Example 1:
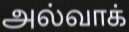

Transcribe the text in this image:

அல்வாக்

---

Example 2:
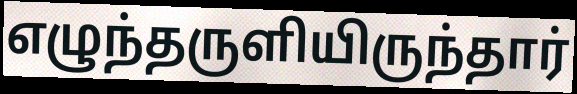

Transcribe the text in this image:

எழுந்தருளியிருந்தார்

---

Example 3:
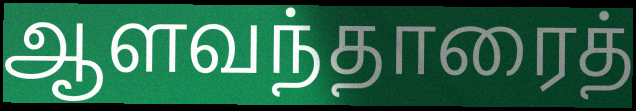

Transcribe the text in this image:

ஆளவந்தாரைத்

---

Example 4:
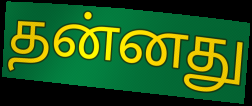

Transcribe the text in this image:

தன்னது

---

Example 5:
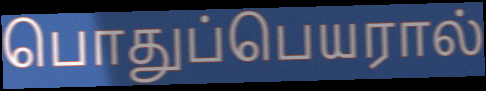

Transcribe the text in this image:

பொதுப்பெயரால்